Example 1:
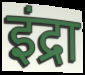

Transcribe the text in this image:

इंद्रा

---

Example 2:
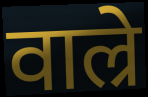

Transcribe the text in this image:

वाल्रे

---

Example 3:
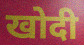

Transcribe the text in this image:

खोदी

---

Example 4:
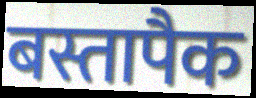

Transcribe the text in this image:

बस्तापैक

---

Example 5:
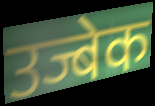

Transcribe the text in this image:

उज्बेक